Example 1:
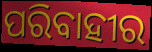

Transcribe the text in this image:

ପରିବାହୀର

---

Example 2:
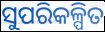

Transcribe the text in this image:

ସୁପରିକଳ୍ପିତ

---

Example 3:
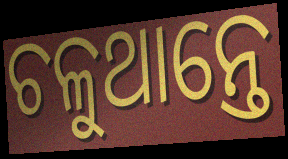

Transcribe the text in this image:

ଚଳୁଥାନ୍ତେ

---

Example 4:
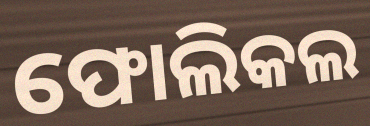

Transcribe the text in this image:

ଫୋଲିକଲ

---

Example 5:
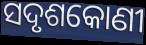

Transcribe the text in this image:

ସଦୃଶକୋଣୀ